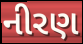
નીરણ